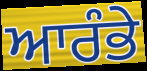
ਆਰੰਭੇ